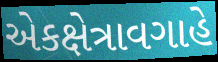
એકક્ષેત્રાવગાહે